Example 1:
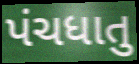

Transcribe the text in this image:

પંચધાતુ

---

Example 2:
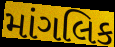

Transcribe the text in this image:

માંગલિક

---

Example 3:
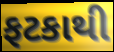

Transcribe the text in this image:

ફટકાથી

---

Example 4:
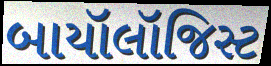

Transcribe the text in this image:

બાયૉલૉજિસ્ટ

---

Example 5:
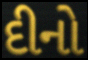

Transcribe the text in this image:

દીનો